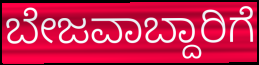
ಬೇಜವಾಬ್ದಾರಿಗೆ